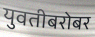
युवतीबरोबर